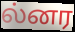
ல்னர